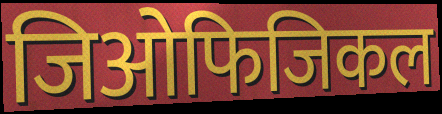
जिओफिजिकल